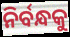
ନିର୍ବନ୍ଧକୁ